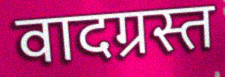
वादग्रस्त